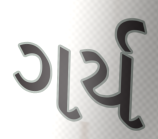
ગર્ય